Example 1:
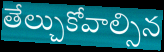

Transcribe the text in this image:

తేల్చుకోవాల్సిన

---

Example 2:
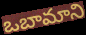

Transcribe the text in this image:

ఒబామాని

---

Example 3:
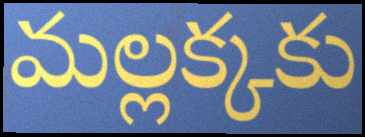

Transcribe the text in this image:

మల్లక్కకు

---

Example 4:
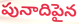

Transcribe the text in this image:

పునాదిపైన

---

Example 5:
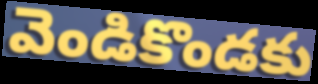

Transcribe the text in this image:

వెండికొండకు